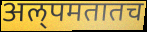
अल्पमतातच